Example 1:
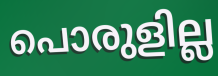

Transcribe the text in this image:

പൊരുളില്ല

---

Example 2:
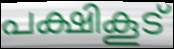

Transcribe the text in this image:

പക്ഷികൂട്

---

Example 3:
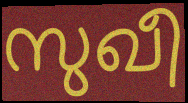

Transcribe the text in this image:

സുഖീ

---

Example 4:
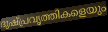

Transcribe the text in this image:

ദുഷ്പ്രവൃത്തികളെയും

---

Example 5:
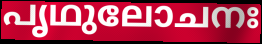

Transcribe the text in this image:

പൃഥുലോചനഃ